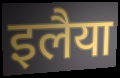
इलैया